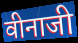
वीनाजी